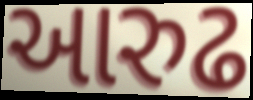
આરુઢ